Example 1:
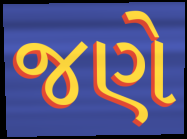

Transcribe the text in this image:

જણે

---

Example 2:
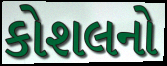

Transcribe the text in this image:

કોશલનો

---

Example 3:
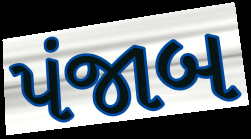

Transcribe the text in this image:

પંજાબ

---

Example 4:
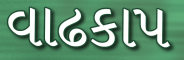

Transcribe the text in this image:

વાઢકાપ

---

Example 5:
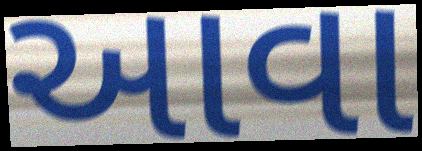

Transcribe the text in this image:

આવા